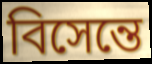
বিসেন্তে